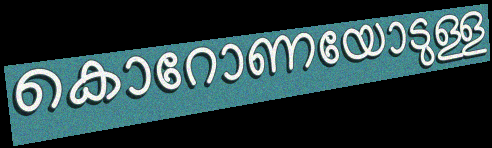
കൊറോണയോടുള്ള